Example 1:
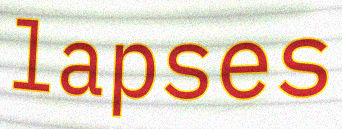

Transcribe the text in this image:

lapses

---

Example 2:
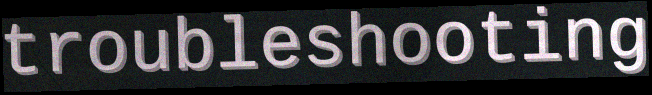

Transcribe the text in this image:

troubleshooting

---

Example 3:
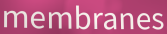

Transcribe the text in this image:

membranes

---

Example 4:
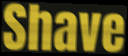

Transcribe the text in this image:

Shave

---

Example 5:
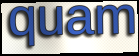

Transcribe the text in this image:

quam